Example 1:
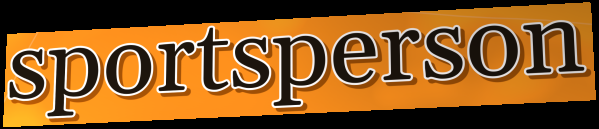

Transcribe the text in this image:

sportsperson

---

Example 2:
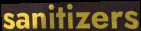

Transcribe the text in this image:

sanitizers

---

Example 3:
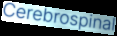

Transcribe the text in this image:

Cerebrospinal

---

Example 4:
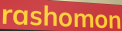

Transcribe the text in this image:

rashomon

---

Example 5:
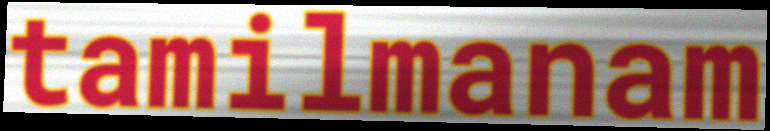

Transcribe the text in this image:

tamilmanam